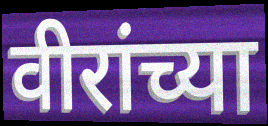
वीरांच्या